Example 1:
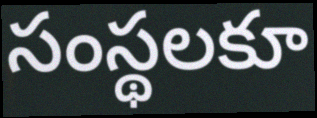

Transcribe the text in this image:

సంస్థలకూ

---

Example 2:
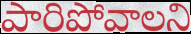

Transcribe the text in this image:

పారిపోవాలని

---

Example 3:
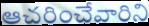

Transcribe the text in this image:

ఆచరించేవారిని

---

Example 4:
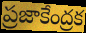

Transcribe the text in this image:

ప్రజాకేంద్రక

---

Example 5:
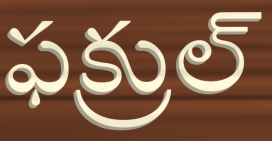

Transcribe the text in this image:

ఫక్రుల్